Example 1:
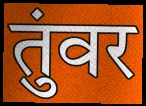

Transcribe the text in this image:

तुंवर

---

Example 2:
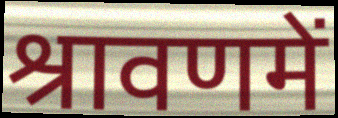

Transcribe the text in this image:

श्रावणमें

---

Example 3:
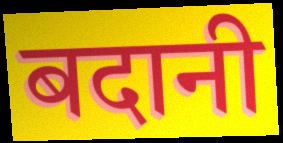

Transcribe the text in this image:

बदानी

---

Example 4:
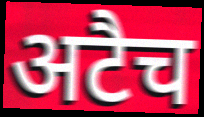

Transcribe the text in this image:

अटैच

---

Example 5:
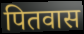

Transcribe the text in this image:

पितवास